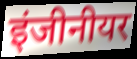
इंजीनीयर